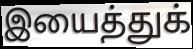
இயைத்துக்